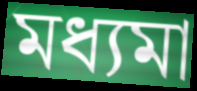
মধ্যমা